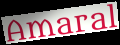
Amaral